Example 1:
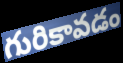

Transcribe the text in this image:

గురికావడం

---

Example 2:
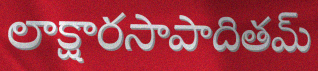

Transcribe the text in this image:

లాక్షారసాపాదితమ్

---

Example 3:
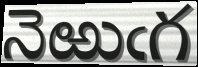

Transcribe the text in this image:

నెఱుఁగ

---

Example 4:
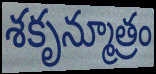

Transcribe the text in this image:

శకృన్మూత్రం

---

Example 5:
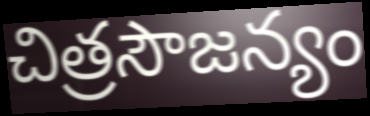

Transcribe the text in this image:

చిత్రసౌజన్యం